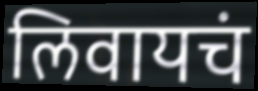
लिवायचं